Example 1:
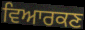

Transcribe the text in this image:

ਵਿਆਰਕਣ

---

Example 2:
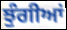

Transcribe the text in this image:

ਝੁੰਗੀਆਂ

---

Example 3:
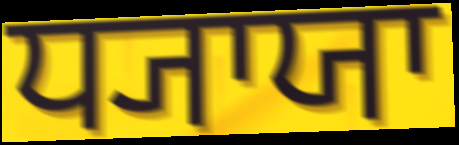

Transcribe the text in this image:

ਧ੍ਯਾਯਾ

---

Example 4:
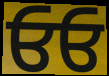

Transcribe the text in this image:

ਓਓ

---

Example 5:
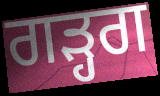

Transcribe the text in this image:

ਗੜ੍ਹਗ